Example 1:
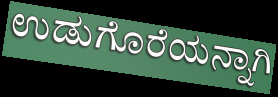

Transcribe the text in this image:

ಉಡುಗೊರೆಯನ್ನಾಗಿ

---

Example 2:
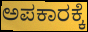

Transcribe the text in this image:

ಅಪಕಾರಕ್ಕೆ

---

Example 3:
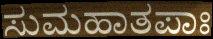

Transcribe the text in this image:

ಸುಮಹಾತಪಾಃ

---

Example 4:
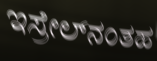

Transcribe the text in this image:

ಇಸ್ರೇಲ್‌ನಂತಹ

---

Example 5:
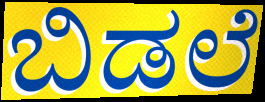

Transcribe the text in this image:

ಬಿಡಲೆ